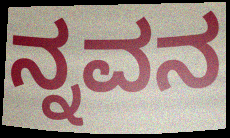
ನ್ನವನ